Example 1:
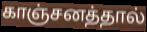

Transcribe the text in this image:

காஞ்சனத்தால்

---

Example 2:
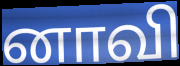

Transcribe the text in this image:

னாவி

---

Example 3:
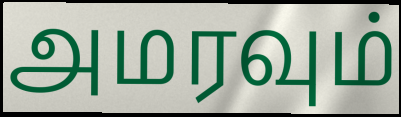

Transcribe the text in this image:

அமரவும்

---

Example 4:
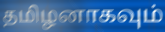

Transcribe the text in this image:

தமிழனாகவும்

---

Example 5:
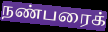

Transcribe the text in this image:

நண்பரைக்